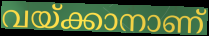
വയ്ക്കാനാണ്